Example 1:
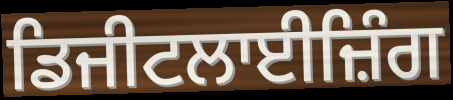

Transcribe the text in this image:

ਡਿਜੀਟਲਾਈਜ਼ਿੰਗ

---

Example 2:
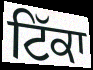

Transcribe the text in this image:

ਟਿੱਕਾ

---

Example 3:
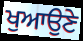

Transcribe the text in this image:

ਖੁਆਉਣੇ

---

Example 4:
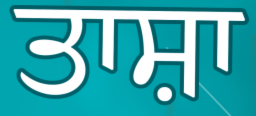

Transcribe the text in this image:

ਤਾਸ਼ਾ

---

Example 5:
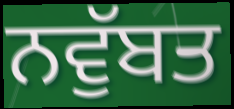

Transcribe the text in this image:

ਨਵੁੱਬਤ